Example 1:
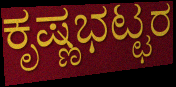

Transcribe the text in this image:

ಕೃಷ್ಣಭಟ್ಟರ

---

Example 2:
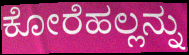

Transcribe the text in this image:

ಕೋರೆಹಲ್ಲನ್ನು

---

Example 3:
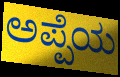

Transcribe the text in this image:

ಅಪ್ಪೆಯ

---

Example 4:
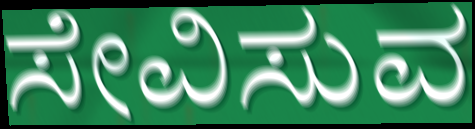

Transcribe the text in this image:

ಸೇವಿಸುವ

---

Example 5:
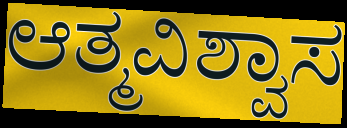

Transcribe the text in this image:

ಆತ್ಮವಿಶ್ವಾಸ